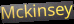
Mckinsey